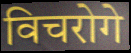
विचरोगे